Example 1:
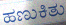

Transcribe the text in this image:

ಹಣುಕಿತು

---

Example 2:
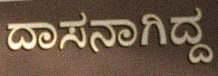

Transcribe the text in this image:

ದಾಸನಾಗಿದ್ದ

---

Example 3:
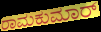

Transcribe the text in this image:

ರಾಮಕುಮಾರ್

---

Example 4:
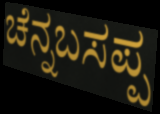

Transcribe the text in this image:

ಚೆನ್ನಬಸಪ್ಪ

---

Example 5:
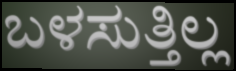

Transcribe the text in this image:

ಬಳಸುತ್ತಿಲ್ಲ